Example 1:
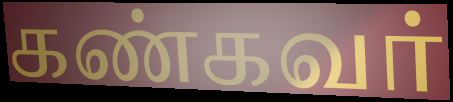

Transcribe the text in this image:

கண்கவர்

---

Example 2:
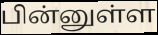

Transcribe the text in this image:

பின்னுள்ள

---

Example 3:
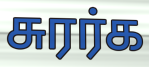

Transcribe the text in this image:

சுரர்க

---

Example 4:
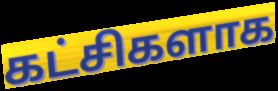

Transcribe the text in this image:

கட்சிகளாக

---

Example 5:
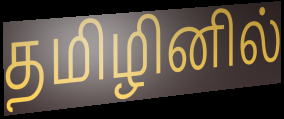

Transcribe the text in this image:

தமிழினில்